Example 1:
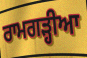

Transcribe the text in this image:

ਰਾਮਗੜ੍ਹੀਆ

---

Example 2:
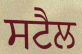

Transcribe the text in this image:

ਸਟੈਲ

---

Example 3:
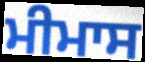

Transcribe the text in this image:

ਮੀਮਾਸ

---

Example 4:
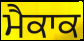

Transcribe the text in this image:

ਮੈਕਾਕ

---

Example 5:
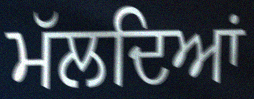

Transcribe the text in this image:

ਮੱਲਦਿਆਂ